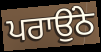
ਪਰਾਉਂਠੇ